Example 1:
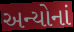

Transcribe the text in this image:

અન્યોનાં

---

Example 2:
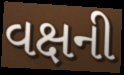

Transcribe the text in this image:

વક્ષની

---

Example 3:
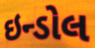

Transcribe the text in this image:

ઇન્ડોલ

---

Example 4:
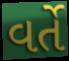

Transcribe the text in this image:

વર્તે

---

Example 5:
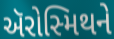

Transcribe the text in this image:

ઍરોસ્મિથને